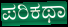
ಪರಿಕಥಾ